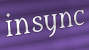
insync